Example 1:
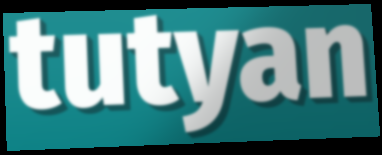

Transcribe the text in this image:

tutyan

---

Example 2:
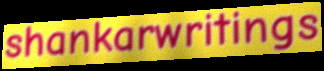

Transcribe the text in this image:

shankarwritings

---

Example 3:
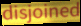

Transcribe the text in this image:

disjoined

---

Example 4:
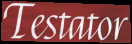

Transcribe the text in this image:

Testator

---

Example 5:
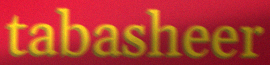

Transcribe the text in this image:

tabasheer